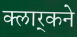
क्लार्कने